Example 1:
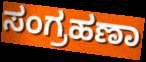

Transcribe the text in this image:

ಸಂಗ್ರಹಣಾ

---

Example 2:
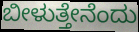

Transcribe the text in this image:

ಬೀಳುತ್ತೇನೆಂದು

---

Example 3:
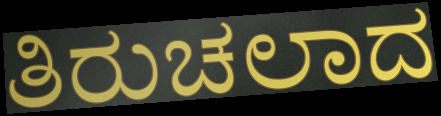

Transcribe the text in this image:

ತಿರುಚಲಾದ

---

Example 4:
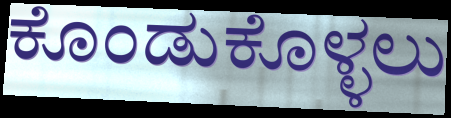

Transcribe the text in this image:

ಕೊಂಡುಕೊಳ್ಳಲು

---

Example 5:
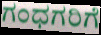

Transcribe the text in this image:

ಗಂಧಗರಿಗೆ